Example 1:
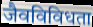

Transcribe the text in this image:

जैवविविधता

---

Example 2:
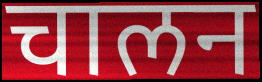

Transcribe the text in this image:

चालन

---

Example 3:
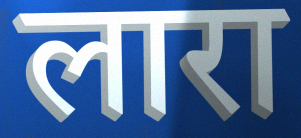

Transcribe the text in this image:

लारा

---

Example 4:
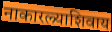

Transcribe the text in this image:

नाकारल्याशिवाय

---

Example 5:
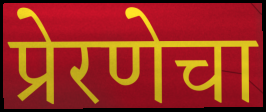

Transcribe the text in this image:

प्रेरणेचा